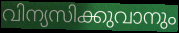
വിന്യസിക്കുവാനും